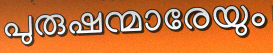
പുരുഷന്മാരേയും